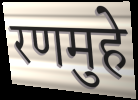
रणमुहे